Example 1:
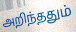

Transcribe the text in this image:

அறிந்ததும்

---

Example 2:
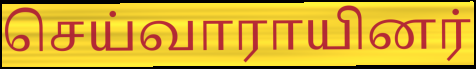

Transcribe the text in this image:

செய்வாராயினர்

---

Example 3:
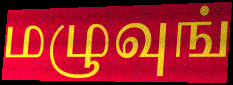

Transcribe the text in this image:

மழுவுங்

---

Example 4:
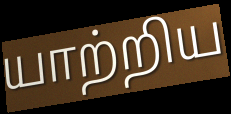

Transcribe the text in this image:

யாற்றிய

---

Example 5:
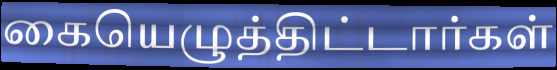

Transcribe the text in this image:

கையெழுத்திட்டார்கள்